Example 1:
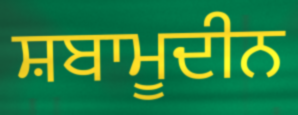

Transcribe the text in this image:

ਸ਼ਬਾਮੂਦੀਨ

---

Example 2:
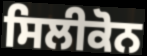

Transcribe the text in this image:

ਸਿਲੀਕੋਨ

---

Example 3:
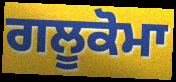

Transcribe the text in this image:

ਗਲੂਕੋਮਾ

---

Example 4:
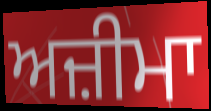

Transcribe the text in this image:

ਅਜ਼ੀਮਾ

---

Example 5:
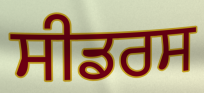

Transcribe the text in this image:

ਸੀਡਰਸ